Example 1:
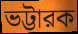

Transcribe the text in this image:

ভট্টারক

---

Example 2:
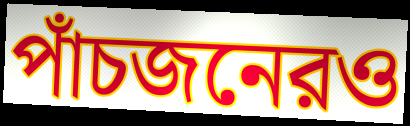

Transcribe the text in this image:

পাঁচজনেরও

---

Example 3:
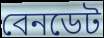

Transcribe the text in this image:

বেনডেট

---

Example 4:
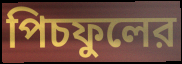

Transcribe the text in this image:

পিচফুলের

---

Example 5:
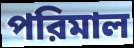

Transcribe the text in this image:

পরিমাল